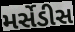
મર્સેડીસ